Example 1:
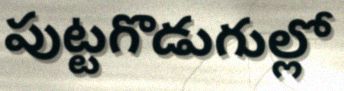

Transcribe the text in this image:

పుట్టగొడుగుల్లో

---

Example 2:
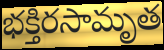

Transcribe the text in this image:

భక్తిరసామృత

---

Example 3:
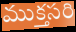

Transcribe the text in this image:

ముక్తసరి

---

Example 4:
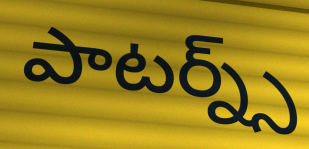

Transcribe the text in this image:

పాటర్న్స్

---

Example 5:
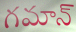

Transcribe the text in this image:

గమాన్